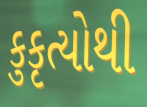
કુકૃત્યોથી